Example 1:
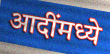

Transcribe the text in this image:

आदींमध्ये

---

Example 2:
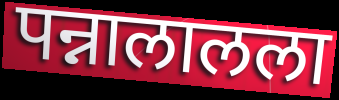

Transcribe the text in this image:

पन्नालालला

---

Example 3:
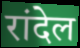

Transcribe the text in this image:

रांदेल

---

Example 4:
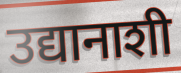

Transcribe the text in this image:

उद्यानाशी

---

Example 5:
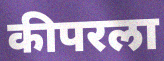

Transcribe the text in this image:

कीपरला